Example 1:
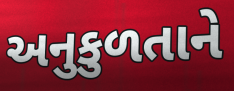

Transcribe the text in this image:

અનુકુળતાને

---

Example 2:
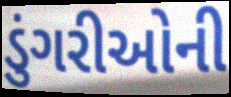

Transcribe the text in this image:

ડુંગરીઓની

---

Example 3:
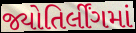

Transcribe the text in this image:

જ્યોતિર્લીંગમાં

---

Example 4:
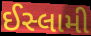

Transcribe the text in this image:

ઈસ્લામી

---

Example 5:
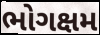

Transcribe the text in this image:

ભોગક્ષમ